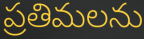
ప్రతిమలను